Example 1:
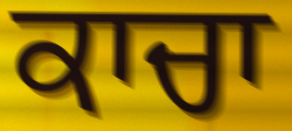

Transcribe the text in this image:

ਕਾਚਾ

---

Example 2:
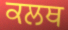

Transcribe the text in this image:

ਕਲਥ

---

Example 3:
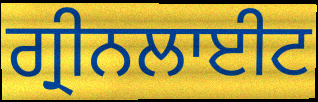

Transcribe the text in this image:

ਗ੍ਰੀਨਲਾਈਟ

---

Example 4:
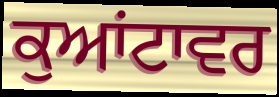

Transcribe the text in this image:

ਕੁਆਂਟਾਵਰ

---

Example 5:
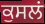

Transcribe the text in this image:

ਕੁਸਲਂ